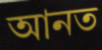
আনত